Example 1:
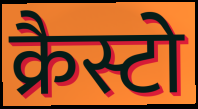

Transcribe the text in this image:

क्रैस्टो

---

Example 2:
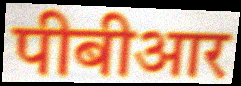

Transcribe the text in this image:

पीबीआर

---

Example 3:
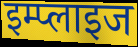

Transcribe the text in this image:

इम्प्लाइज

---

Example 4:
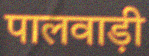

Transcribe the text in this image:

पालवाड़ी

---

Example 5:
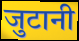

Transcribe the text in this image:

जुटानी